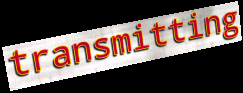
transmitting